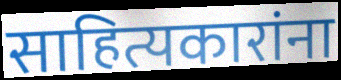
साहित्यकारांना